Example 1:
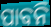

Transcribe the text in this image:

ପାବନି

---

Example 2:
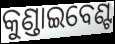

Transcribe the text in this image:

କୁଣ୍ଡାଇବେଣ୍ଟ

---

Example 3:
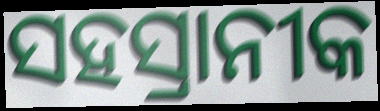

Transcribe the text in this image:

ସହସ୍ରାନୀକ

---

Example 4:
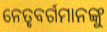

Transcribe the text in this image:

ନେତୃବର୍ଗମାନଙ୍କୁ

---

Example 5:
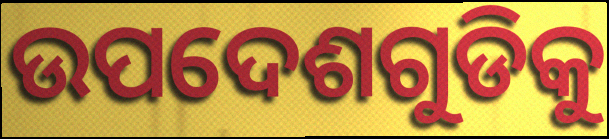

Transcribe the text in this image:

ଉପଦେଶଗୁଡିକୁ